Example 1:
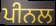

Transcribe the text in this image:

ਪੀਨਲ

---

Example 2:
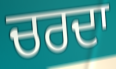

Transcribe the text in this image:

ਚਰਦਾ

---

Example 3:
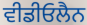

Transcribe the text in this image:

ਵੀਡੀਓਲੈਨ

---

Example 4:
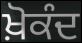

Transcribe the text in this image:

ਖ਼ੋਕੰਦ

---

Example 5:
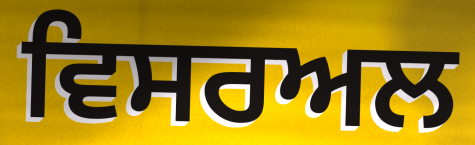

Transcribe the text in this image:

ਵਿਸਰਅਲ